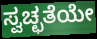
ಸ್ವಚ್ಛತೆಯೇ